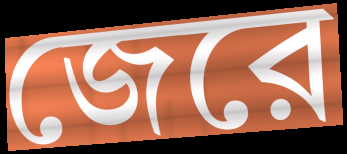
জেরে